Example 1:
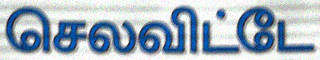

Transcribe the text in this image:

செலவிட்டே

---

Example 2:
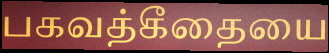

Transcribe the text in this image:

பகவத்கீதையை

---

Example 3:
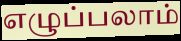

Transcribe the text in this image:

எழுப்பலாம்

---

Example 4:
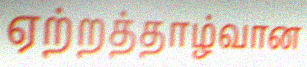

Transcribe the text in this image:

ஏற்றத்தாழ்வான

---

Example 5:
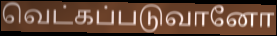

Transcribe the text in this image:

வெட்கப்படுவானோ